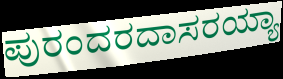
ಪುರಂದರದಾಸರಯ್ಯಾ